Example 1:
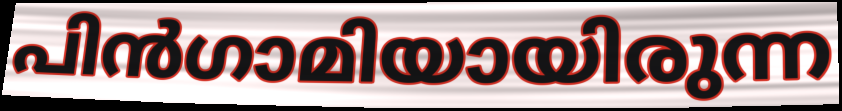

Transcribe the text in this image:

പിൻഗാമിയായിരുന്ന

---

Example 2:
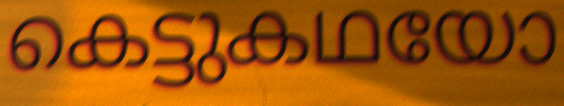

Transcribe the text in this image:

കെട്ടുകഥയോ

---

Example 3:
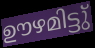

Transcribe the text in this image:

ഊഴമിട്ടു്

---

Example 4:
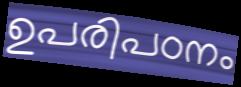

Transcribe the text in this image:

ഉപരിപഠനം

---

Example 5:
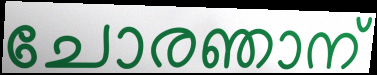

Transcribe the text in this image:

ചോരഞാന്